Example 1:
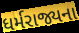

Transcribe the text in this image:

ધર્મરાજ્યના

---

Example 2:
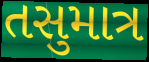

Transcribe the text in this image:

તસુમાત્ર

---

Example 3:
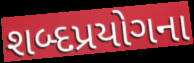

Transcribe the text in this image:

શબ્દપ્રયોગના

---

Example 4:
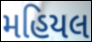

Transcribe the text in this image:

મહિયલ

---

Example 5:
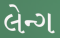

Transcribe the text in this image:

લેન્ગ